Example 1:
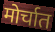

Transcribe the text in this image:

मोर्चात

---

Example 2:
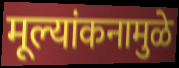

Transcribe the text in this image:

मूल्यांकनामुळे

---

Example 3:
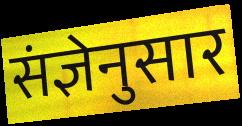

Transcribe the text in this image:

संज्ञेनुसार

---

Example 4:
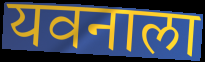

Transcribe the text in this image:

यवनाला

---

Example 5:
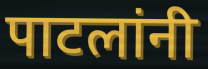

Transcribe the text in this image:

पाटलांनी